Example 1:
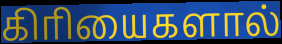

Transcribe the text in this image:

கிரியைகளால்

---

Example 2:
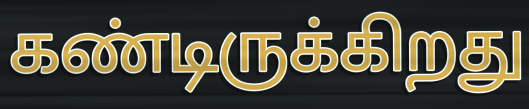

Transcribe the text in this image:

கண்டிருக்கிறது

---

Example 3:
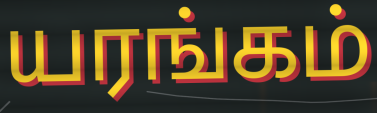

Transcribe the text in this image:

யரங்கம்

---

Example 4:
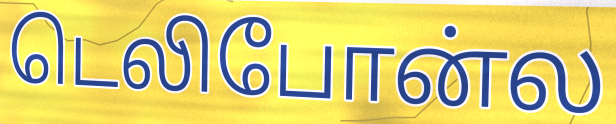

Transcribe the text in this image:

டெலிபோன்ல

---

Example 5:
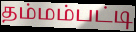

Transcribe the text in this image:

தம்மம்பட்டி